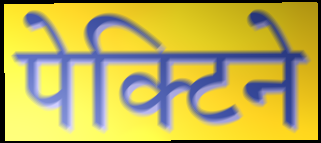
पेक्टिने